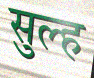
सुल्ह